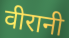
वीरानी